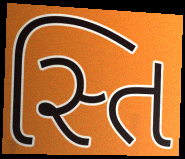
સ્તિ